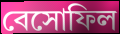
বেসোফিল